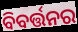
ବିବର୍ତ୍ତନର